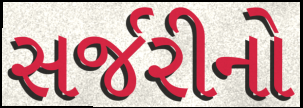
સર્જરીનો